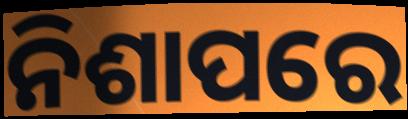
ନିଶାପରେ